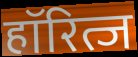
हॉरित्ज